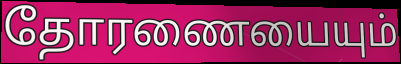
தோரணையையும்